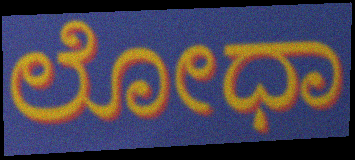
ಲೋಧಾ